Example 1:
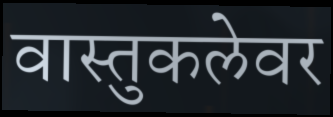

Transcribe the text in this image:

वास्तुकलेवर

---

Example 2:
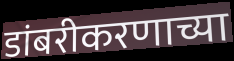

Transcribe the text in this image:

डांबरीकरणाच्या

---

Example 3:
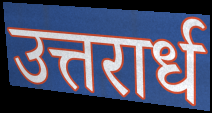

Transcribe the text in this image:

उत्तरार्ध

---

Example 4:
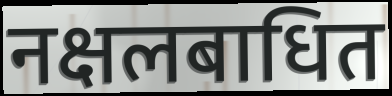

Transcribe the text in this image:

नक्षलबाधित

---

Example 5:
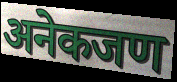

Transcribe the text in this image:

अनेकजण